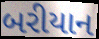
બરીયાન